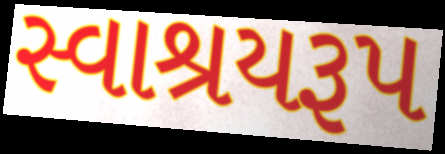
સ્વાશ્રયરૂપ